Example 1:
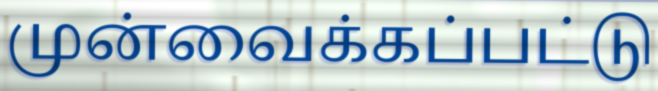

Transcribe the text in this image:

முன்வைக்கப்பட்டு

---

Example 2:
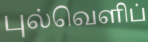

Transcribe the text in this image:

புல்வெளிப்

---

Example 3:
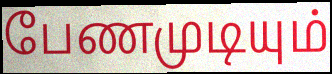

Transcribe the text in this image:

பேணமுடியும்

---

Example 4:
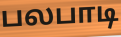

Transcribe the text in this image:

பலபாடி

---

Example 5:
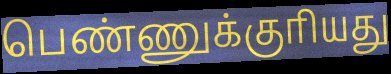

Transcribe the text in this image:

பெண்ணுக்குரியது